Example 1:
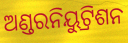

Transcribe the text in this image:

ଅଣ୍ଡରନିୟୁଟ୍ରିଶନ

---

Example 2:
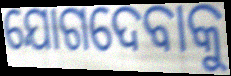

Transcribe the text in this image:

ଯୋଗଦେବାକୁ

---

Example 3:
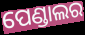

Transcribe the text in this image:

ପେଣ୍ଡାଲର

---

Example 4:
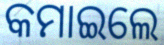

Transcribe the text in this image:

କମାଇଲେ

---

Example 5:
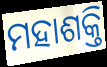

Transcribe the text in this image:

ମହାଶକ୍ତି